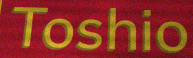
Toshio